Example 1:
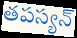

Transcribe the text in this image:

తపస్యన్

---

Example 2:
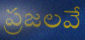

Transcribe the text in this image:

ప్రజలవే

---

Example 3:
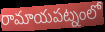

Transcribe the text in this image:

రామాయపట్నంలో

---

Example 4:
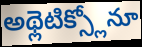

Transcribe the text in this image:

అథ్లెటిక్స్లోనూ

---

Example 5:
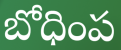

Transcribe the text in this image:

బోధింప